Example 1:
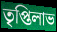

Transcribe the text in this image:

তৃপ্তিলাভ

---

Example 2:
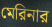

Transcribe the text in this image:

মেরিনার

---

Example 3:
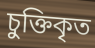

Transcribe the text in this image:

চুক্তিকৃত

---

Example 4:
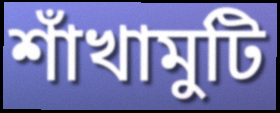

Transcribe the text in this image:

শাঁখামুটি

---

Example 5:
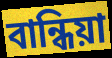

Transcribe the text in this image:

বান্ধিয়া